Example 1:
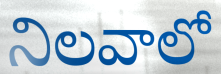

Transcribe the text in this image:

నిలవాలో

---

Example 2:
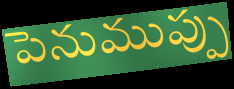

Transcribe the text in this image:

పెనుముప్పు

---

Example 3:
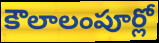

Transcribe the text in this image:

కౌలాలంపూర్లో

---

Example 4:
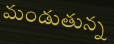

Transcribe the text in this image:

మండుతున్న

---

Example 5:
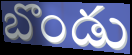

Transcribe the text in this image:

బొండు